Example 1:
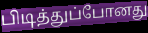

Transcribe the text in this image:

பிடித்துப்போனது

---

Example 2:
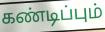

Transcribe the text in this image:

கண்டிப்பும்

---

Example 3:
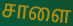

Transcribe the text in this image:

சாளை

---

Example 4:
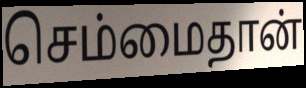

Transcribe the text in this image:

செம்மைதான்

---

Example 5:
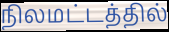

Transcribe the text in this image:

நிலமட்டத்தில்